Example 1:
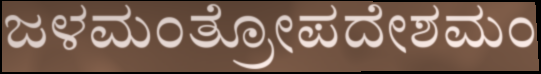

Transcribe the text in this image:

ಜಳಮಂತ್ರೋಪದೇಶಮಂ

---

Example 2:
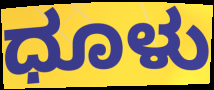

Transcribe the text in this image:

ಧೂಳು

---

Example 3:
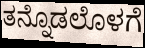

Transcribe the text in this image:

ತನ್ನೊಡಲೊಳಗೆ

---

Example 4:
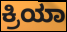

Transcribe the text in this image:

ಕ್ರಿಯಾ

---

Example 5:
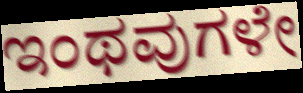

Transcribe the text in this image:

ಇಂಥವುಗಳೇ